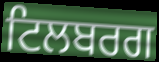
ਟਿਲਬਰਗ